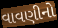
વાવણીનો